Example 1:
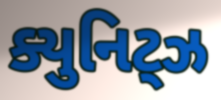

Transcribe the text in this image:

ક્યુનિટ્ઝ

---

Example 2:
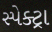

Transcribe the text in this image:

સ્પેક્ટ્રા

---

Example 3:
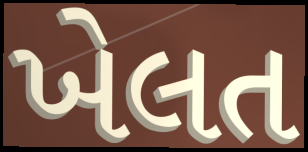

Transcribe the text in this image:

ખેલત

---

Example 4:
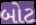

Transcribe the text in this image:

બોટ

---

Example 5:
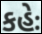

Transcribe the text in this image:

કહેઃ